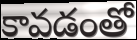
కావడంతో